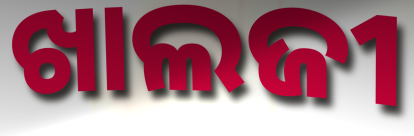
ଖାଲଜୀ